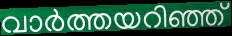
വാർത്തയറിഞ്ഞ്